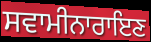
ਸਵਾਮੀਨਾਰਾਇਣ